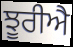
ਝੂਰੀਐ